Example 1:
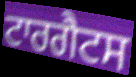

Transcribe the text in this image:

ਟਾਰਗੈਟਸ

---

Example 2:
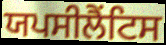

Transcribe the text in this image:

ਯਪਸੀਲੈਂਟਿਸ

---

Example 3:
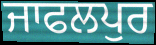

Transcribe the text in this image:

ਜਾਫਲਪੁਰ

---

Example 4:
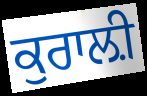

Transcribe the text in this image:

ਕੁਰਾਲ਼ੀ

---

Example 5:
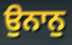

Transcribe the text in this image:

ਉਨਾਨੁ